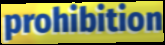
prohibition